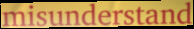
misunderstand